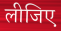
लीजिए